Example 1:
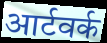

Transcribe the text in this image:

आर्टवर्क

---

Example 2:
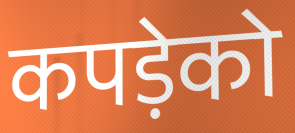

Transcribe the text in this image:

कपड़ेको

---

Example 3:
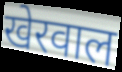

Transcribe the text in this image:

खेरवाल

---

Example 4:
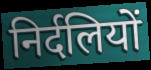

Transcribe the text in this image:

निर्दलियों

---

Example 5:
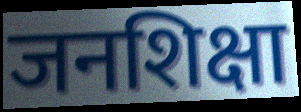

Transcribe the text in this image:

जनशिक्षा